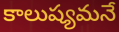
కాలుష్యమనే